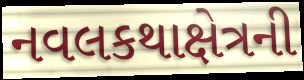
નવલકથાક્ષેત્રની